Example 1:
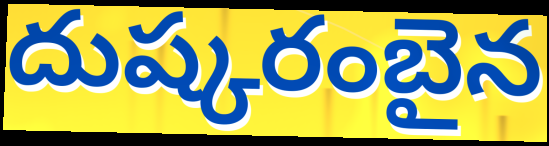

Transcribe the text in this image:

దుష్కరంబైన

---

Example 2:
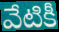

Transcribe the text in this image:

వేటికీ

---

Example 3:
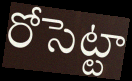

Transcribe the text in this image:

రోసెట్టా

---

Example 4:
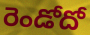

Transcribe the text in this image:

రెండోదో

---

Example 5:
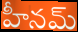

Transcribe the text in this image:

హీనమ్